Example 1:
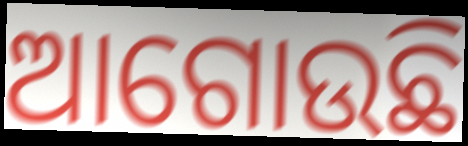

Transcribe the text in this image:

ଆଗୋଉଛି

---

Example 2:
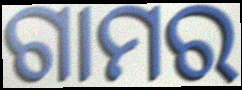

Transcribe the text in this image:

ଗାମର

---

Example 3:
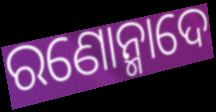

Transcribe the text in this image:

ରଣୋନ୍ମାଦେ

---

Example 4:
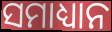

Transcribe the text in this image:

ସମାଧ୍ୟାନ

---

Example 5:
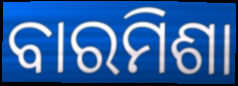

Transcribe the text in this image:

ବାରମିଶା